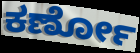
ಕರ್ಣೋ